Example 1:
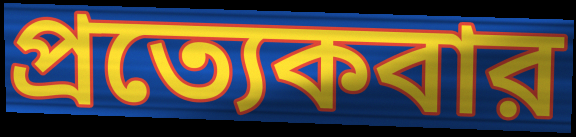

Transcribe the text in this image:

প্রত্যেকবার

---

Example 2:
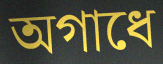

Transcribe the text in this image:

অগাধে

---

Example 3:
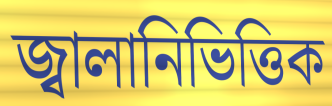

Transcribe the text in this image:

জ্বালানিভিত্তিক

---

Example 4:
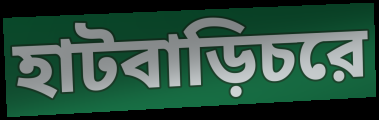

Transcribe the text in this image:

হাটবাড়িচরে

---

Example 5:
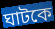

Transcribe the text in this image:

ঘাটকে